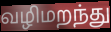
வழிமறந்து